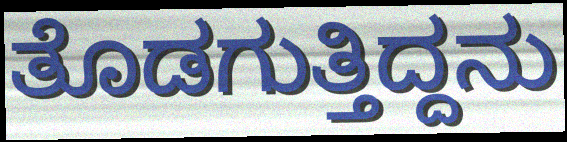
ತೊಡಗುತ್ತಿದ್ದನು